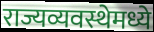
राज्यव्यवस्थेमध्ये